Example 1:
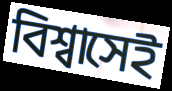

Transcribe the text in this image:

বিশ্বাসেই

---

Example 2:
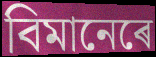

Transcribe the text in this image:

বিমানেৰে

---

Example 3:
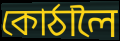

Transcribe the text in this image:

কোঠালৈ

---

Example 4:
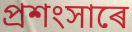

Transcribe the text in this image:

প্ৰশংসাৰে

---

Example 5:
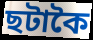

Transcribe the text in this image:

ছটাকৈ